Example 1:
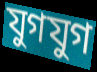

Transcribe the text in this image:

যুগযুগ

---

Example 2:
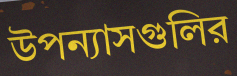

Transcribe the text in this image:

উপন্যাসগুলির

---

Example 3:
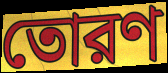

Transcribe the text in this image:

তোরণ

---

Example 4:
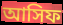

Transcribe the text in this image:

আসিফ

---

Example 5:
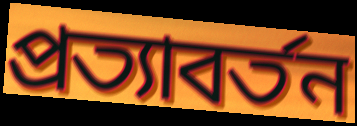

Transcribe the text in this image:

প্রত্যাবর্তন